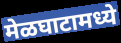
मेळघाटामध्ये